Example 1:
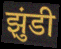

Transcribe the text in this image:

झुंडी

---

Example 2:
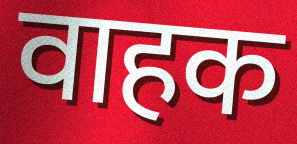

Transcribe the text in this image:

वाहक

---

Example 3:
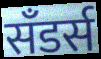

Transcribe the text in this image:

सॅंडर्स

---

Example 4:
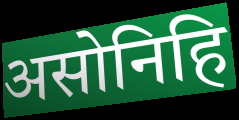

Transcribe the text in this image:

असोनिहि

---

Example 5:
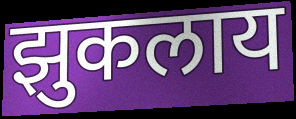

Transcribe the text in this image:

झुकलाय